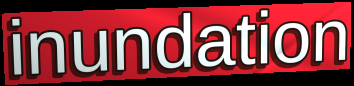
inundation